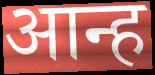
आन्ह